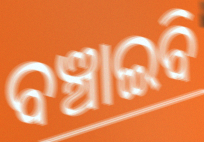
ବଞ୍ଚାଇବି